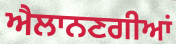
ਐਲਾਨਣਗੀਆਂ